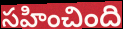
సహించింది